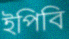
ইপিবি